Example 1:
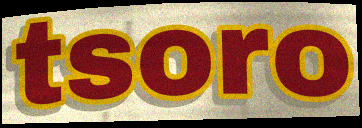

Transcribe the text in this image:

tsoro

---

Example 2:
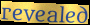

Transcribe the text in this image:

revealed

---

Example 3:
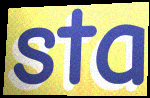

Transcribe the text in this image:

sta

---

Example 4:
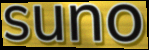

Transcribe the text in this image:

suno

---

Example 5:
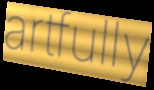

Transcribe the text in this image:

artfully